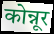
कोन्नूर